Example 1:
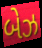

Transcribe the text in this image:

બેઝ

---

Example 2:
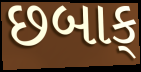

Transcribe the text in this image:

છબાક્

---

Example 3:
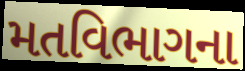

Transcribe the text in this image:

મતવિભાગના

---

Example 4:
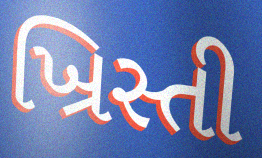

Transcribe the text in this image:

ખ્રિસ્તી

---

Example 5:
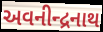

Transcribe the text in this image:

અવનીન્દ્રનાથ